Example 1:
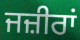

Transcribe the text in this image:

ਜਜ਼ੀਰਾਂ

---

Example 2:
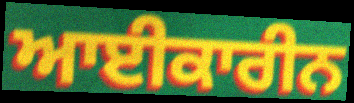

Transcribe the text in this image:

ਆਈਕਾਰੀਨ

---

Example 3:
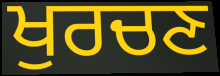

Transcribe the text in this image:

ਖੁਰਚਣ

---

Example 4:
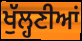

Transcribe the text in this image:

ਖੁੱਲ੍ਹਣੀਆਂ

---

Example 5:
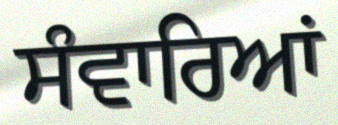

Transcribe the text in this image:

ਸੰਵਾਰਿਆਂ